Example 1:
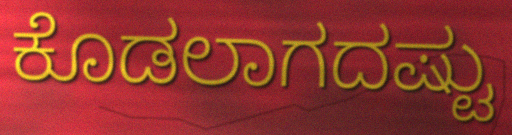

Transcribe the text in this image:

ಕೊಡಲಾಗದಷ್ಟು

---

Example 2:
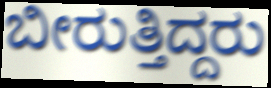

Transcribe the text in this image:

ಬೀರುತ್ತಿದ್ದರು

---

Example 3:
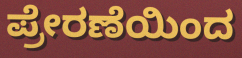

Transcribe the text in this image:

ಪ್ರೇರಣೆಯಿಂದ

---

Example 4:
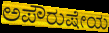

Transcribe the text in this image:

ಅಪೌರುಷೇಯ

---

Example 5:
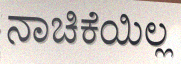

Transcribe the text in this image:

ನಾಚಿಕೆಯಿಲ್ಲ